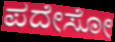
ಪದೇಸೋ